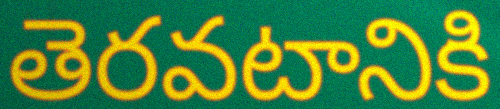
తెరవటానికి